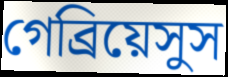
গেব্রিয়েসুস